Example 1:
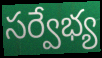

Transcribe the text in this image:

సర్వేభ్య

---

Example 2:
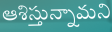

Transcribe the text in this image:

ఆశిస్తున్నామని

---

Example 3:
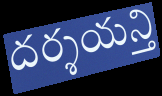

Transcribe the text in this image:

దర్శయన్తి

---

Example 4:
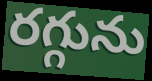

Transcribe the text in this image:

రగ్గును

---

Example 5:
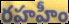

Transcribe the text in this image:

రహహీం